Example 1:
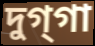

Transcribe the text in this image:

দুগ্‌গা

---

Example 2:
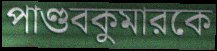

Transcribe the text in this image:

পাণ্ডবকুমারকে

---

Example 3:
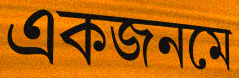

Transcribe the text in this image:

একজনমে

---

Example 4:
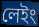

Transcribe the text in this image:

লেইং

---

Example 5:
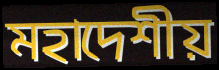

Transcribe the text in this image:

মহাদেশীয়